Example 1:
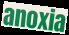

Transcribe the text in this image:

anoxia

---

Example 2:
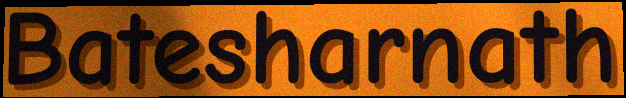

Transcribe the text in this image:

Batesharnath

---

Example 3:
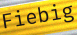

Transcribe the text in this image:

Fiebig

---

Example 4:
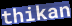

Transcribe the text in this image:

thikan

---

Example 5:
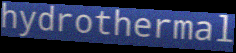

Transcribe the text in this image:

hydrothermal